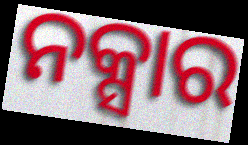
ନକ୍ସାର